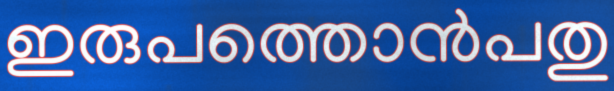
ഇരുപത്തൊൻപതു